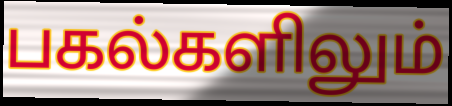
பகல்களிலும்